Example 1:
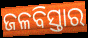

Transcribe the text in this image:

ଜଳବିସ୍ତାର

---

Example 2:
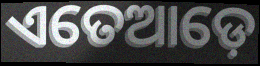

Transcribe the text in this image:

ଏତେଆଡ଼େ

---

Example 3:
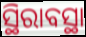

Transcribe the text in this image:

ସ୍ଥିରାବସ୍ଥା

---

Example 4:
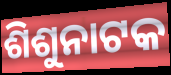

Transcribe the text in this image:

ଶିଶୁନାଟକ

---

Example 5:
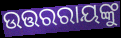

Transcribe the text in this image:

ଉତ୍ତରରାୟଙ୍କୁ